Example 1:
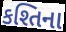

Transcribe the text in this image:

કશ્તિના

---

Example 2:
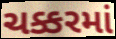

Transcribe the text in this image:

ચક્કરમાં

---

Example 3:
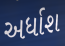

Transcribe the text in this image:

અર્ધાશ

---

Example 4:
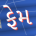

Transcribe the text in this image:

ફેમ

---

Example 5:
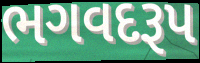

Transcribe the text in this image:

ભગવદરૂપ